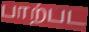
பாற்பட